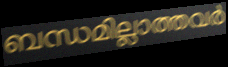
ബന്ധമില്ലാത്തവർ